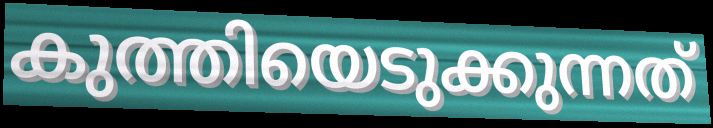
കുത്തിയെടുക്കുന്നത്